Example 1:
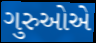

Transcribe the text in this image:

ગુરુઓએ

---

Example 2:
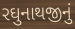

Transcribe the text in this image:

રઘુનાથજીનું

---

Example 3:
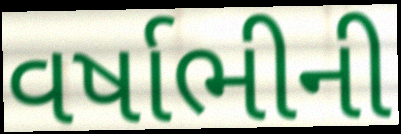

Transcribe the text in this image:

વર્ષાભીની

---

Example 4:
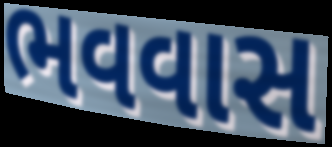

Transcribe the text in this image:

ભવવાસ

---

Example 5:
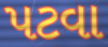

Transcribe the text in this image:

પટવા